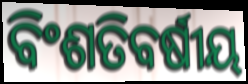
ବିଂଶତିବର୍ଷୀୟ